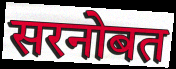
सरनोबत